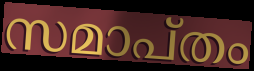
സമാപ്തം